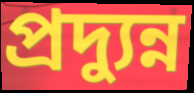
প্রদ্যুন্ন